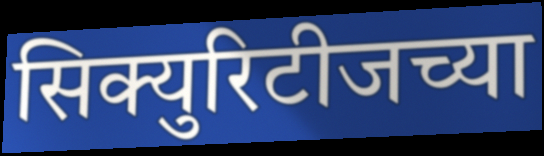
सिक्युरिटीजच्या